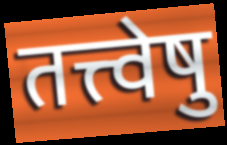
तत्त्वेषु